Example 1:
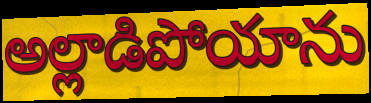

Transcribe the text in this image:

అల్లాడిపోయాను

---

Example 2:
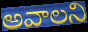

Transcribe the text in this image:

అవాలని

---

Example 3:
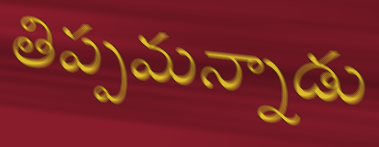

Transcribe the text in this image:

తిప్పమన్నాడు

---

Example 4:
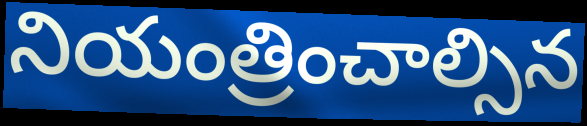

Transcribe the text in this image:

నియంత్రించాల్సిన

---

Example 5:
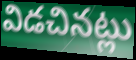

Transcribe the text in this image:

విడచినట్లు